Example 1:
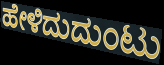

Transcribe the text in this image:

ಹೇಳಿದುದುಂಟು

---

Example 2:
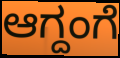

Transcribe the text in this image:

ಆಗ್ದಂಗೆ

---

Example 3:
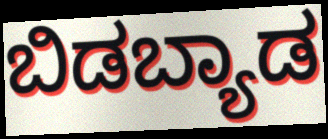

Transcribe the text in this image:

ಬಿಡಬ್ಯಾಡ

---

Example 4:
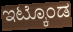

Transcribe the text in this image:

ಇಟ್ಕೊಂಡ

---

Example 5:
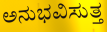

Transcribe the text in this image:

ಅನುಭವಿಸುತ್ತ